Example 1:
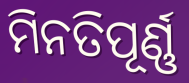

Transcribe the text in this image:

ମିନତିପୂର୍ଣ୍ଣ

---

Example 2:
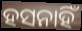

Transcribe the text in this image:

ହସନାହିଁ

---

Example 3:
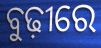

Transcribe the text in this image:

ବୁଢ଼ୀରେ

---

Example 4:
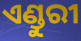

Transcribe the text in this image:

ଏଣ୍ଡୁରୀ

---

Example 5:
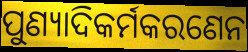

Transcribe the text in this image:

ପୁଣ୍ଯାଦିକର୍ମକରଣେନ